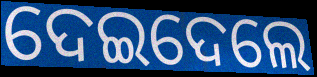
ଦେଇଦେଲେ